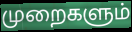
முறைகளும்